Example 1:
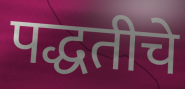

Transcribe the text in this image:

पद्धतीचे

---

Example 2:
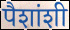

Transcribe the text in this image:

पैशांशी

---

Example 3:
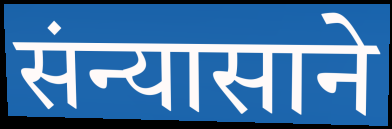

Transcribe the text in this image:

संन्यासाने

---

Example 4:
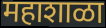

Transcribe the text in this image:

महाशाळा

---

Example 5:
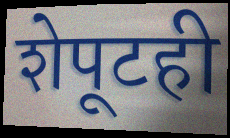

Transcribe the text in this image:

शेपूटही